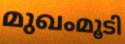
മുഖംമൂടി